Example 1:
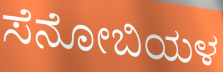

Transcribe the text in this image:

ಸೆನೋಬಿಯಳ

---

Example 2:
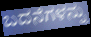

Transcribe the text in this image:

ಬದನೆಗಳನ್ನು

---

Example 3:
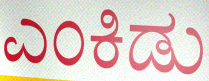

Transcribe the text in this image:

ಎಂಕಿಡು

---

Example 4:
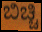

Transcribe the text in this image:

ಬಿಚ್ಚಿ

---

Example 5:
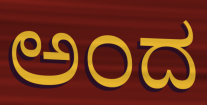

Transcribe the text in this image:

ಅಂದ